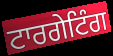
ਟਾਰਗੇਟਿੰਗ